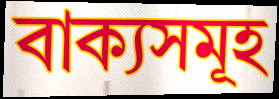
বাক্যসমূহ